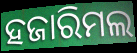
ହଜାରିମଲ